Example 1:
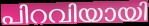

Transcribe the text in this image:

പിറവിയായി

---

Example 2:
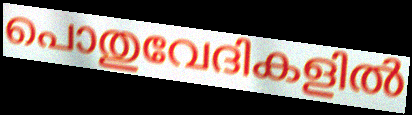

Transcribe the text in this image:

പൊതുവേദികളിൽ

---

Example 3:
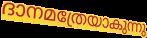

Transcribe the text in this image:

ദാനമത്രേയാകുന്നു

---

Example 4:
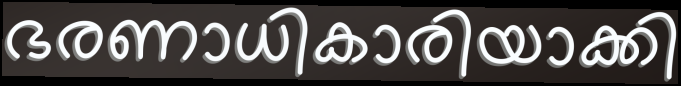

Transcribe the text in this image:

ഭരണാധികാരിയാക്കി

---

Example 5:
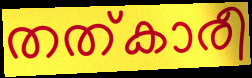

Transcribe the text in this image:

തത്കാരീ